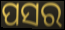
ପସର